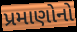
પ્રમાણોનો